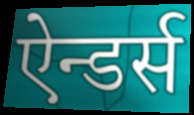
ऐन्डर्स